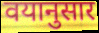
वयानुसार